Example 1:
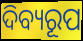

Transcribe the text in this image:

ଦିବ୍ୟରୂପ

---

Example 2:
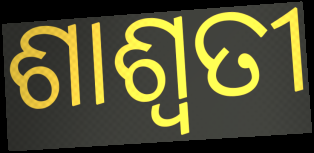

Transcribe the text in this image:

ଶାଶ୍ଵତୀ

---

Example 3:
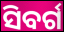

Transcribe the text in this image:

ସିବର୍ଗ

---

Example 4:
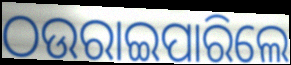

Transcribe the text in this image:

ଠଉରାଇପାରିଲେ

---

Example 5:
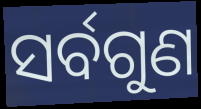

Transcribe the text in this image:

ସର୍ବଗୁଣ